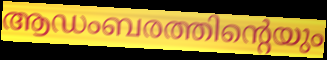
ആഡംബരത്തിന്റെയും